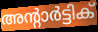
അന്റാർട്ടിക്